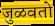
जुळवतो